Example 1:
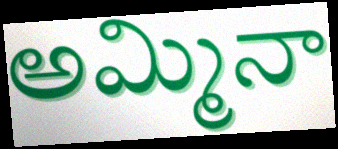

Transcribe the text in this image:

అమ్మినా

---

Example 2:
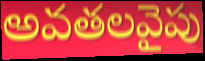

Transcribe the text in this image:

అవతలవైపు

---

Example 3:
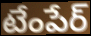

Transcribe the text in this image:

టేంపేర్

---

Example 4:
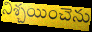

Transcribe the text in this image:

నిశ్చయించెను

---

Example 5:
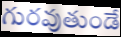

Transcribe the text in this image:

గురవుతుండే